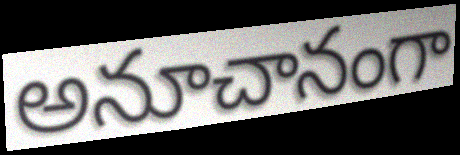
అనూచానంగా